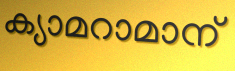
ക്യാമറാമാന്